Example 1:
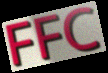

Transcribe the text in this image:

FFC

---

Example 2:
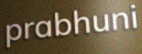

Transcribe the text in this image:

prabhuni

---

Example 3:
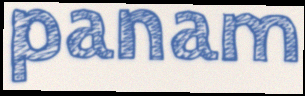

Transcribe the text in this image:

panam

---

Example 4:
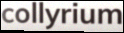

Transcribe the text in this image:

collyrium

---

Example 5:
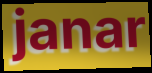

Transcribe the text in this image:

janar